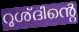
റുശ്ദിന്റെ